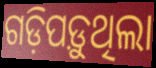
ଗଡ଼ିପଡ଼ୁଥିଲା